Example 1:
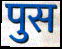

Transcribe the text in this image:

पुस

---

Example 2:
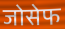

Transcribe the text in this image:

जोसेफ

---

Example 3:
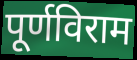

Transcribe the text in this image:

पूर्णविराम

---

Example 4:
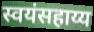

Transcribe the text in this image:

स्वयंसहाय्य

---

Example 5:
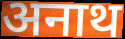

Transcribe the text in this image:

अनाथ